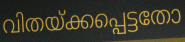
വിതയ്ക്കപ്പെട്ടതോ